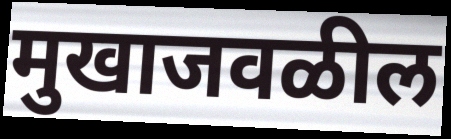
मुखाजवळील